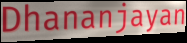
Dhananjayan